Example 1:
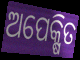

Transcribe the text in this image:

ଅପେକ୍ଷିତ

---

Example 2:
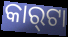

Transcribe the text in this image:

କାର୍‍ଟା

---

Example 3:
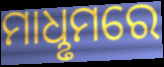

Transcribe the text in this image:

ମାଧୢମରେ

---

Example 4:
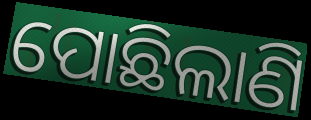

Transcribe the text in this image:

ପୋଛିଲାଣି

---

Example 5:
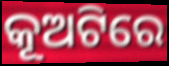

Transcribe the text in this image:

କୂଅଟିରେ